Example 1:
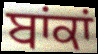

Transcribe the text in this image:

ਬਾਂਕਾਂ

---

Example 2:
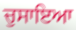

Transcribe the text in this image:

ਚੁਸਾਇਆ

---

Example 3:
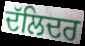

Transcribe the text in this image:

ਦੱਲਿਦਰ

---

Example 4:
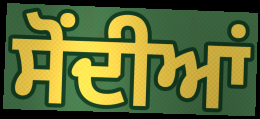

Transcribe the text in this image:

ਸੋਂਦੀਆਂ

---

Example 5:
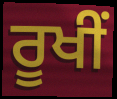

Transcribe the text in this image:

ਰੂਖੀਂ